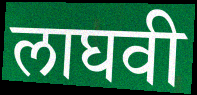
लाघवी